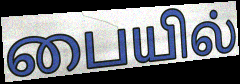
பையில்